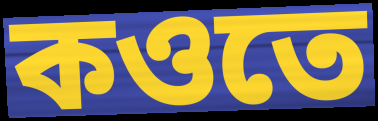
কওতে